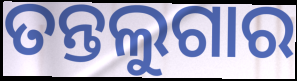
ତନ୍ତଲୁଗାର